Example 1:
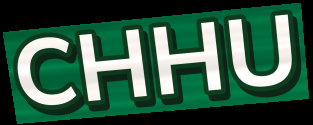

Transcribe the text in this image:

CHHU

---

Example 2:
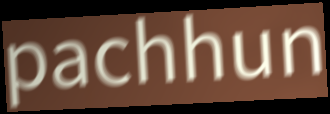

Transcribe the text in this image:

pachhun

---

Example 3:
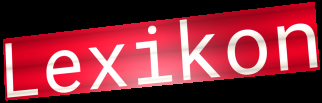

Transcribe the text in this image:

Lexikon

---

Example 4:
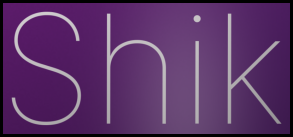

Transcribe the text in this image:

Shik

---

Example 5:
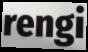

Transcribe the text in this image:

rengi